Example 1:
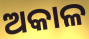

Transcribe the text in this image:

ଅକାଳ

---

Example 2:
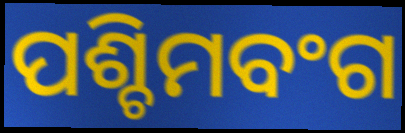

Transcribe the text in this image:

ପଶ୍ଚିମବଂଗ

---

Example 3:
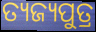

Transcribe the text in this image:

ତ୍ୟଜ୍ୟପୁତ୍ର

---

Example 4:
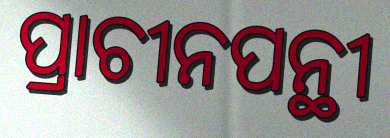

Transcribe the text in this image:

ପ୍ରାଚୀନପନ୍ଥୀ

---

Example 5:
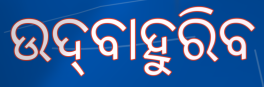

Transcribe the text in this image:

ଉଦ୍‌ବାହୁରିବ